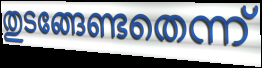
തുടങ്ങേണ്ടതെന്ന്